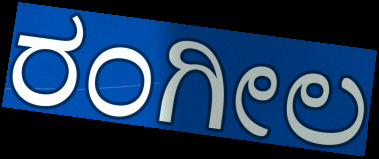
ರಂಗೀಲ